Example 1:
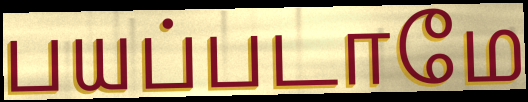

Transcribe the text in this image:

பயப்படாமே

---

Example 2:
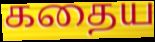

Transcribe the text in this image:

கதைய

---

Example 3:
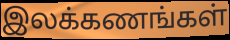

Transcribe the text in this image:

இலக்கணங்கள்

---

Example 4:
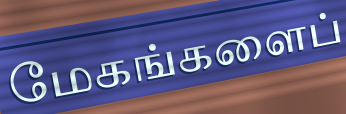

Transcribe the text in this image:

மேகங்களைப்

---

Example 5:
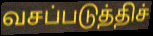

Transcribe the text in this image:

வசப்படுத்திச்